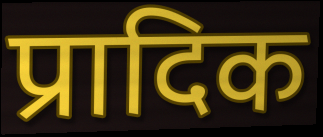
प्रादिक